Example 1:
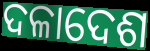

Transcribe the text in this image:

ଦଳାଦେଶ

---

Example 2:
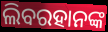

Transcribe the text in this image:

ଲିବରହାନଙ୍କ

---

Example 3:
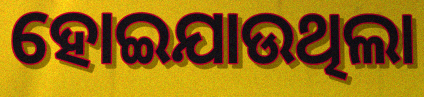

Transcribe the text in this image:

ହୋଇଯାଉଥିଲା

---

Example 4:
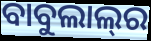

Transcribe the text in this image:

ବାବୁଲାଲ୍‍ର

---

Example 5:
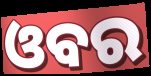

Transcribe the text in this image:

ଓବର